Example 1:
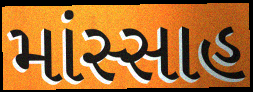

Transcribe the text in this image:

માંસ્સાહ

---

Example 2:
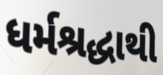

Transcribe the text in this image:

ધર્મશ્રદ્ધાથી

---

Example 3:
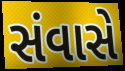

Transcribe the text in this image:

સંવાસે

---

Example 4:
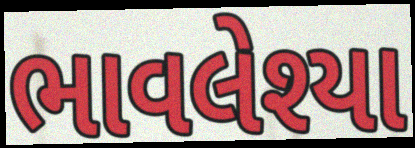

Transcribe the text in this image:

ભાવલેશ્યા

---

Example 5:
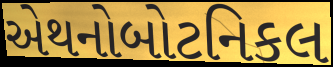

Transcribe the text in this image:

એથનોબોટનિકલ